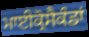
ਮਾਈਕ੍ਰੋਸੈਕੰਡਾਂ